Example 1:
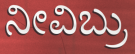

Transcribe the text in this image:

ನೀವಿಬ್ರು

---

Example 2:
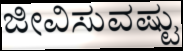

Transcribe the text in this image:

ಜೀವಿಸುವಷ್ಟು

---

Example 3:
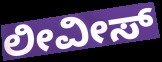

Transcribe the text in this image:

ಲೀವೀಸ್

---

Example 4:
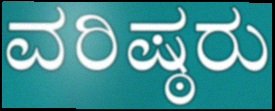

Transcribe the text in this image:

ವರಿಷ್ಠರು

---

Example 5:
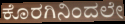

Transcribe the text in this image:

ಕೊರಗಿನಿಂದಲೇ